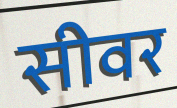
सीवर